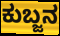
ಕುಬ್ಜನ